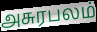
அசுரபலம்